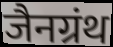
जैनग्रंथ